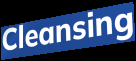
Cleansing